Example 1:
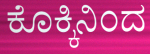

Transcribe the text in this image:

ಕೊಕ್ಕಿನಿಂದ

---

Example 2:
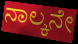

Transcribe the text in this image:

ನಾಲ್ಕನೇ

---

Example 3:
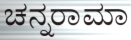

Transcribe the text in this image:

ಚನ್ನರಾಮಾ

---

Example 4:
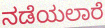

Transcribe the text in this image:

ನಡೆಯಲಾರೆ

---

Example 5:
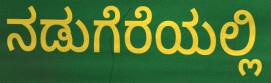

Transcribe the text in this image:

ನಡುಗೆರೆಯಲ್ಲಿ